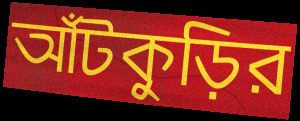
আঁটকুড়ির